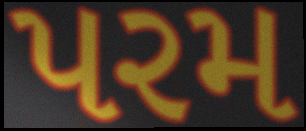
પરમ